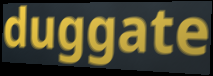
duggate